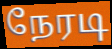
நேரடி